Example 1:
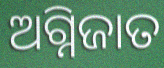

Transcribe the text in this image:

ଅଗ୍ନିଜାତ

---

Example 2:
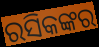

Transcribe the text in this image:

ରସିକଙ୍କର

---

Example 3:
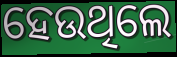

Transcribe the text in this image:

ହେଉଥିଲେ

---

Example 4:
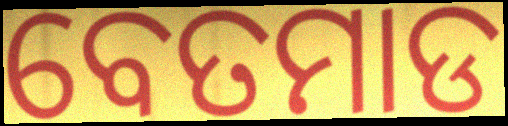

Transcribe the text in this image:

ବେତମାଡ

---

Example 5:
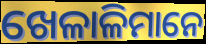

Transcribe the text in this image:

ଖେଳାଳିମାନେ